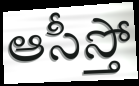
ఆసీస్తో